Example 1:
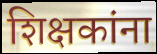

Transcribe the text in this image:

शिक्षकांना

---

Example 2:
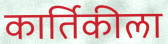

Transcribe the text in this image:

कार्तिकीला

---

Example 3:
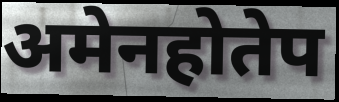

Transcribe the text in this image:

अमेनहोतेप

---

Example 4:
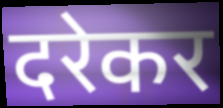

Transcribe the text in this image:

दरेकर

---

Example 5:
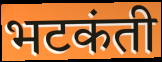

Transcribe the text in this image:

भटकंती